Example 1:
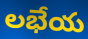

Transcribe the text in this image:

లభేయ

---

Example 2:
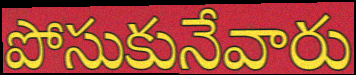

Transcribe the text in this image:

పోసుకునేవారు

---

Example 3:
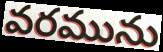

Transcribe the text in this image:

వరమును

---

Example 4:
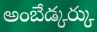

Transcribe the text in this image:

అంబేడ్కర్కు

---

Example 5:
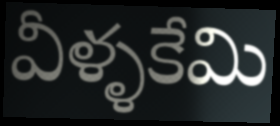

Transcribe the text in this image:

వీళ్ళకేమి